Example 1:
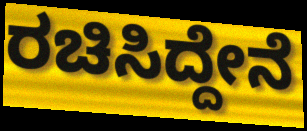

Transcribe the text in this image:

ರಚಿಸಿದ್ದೇನೆ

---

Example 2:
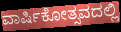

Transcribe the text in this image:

ವಾರ್ಷಿಕೋತ್ಸವದಲ್ಲಿ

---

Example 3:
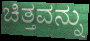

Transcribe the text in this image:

ಚಿತ್ತವನ್ನು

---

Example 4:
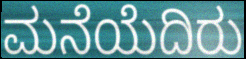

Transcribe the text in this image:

ಮನೆಯೆದಿರು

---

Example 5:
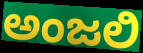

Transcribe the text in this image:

ಅಂಜಲಿ